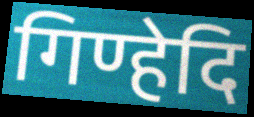
गिण्हेदि